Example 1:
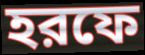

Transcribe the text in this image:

হরফে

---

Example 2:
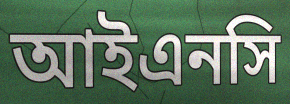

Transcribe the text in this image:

আইএনসি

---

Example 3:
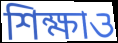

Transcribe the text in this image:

শিক্ষাও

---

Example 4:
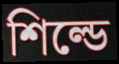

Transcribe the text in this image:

শিল্ডে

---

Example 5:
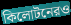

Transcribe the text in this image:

কিলোটনেরও